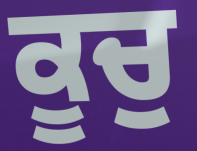
ਕੂਚੁ